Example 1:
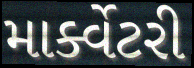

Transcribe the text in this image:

માર્ક્વેટરી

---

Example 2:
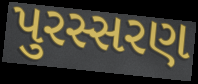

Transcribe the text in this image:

પુરસ્સરણ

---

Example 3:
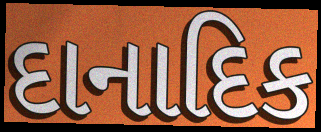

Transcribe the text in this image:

દાનાદિક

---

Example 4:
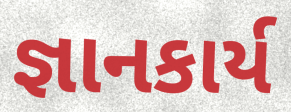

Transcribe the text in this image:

જ્ઞાનકાર્ય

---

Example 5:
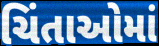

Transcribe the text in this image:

ચિંતાઓમાં